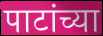
पाटांच्या